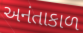
અનંતાકાળ